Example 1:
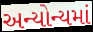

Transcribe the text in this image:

અન્યોન્યમાં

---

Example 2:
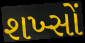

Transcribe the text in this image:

શખ્સોં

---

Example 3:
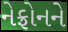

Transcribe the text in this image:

નેફ્રોનને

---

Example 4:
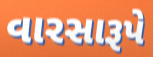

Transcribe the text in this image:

વારસારૂપે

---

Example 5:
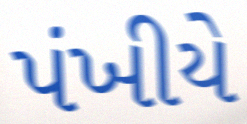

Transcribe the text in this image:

પંખીયે